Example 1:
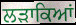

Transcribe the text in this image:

ਲੜਾਕਿਆਂ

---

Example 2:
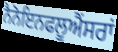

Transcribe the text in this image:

ਨੈਨੋਇਨਫਲੂਐਂਸਰਾਂ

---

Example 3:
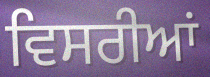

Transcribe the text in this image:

ਵਿਸਰੀਆਂ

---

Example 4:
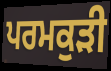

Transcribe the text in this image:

ਪਰਮਕੁੜੀ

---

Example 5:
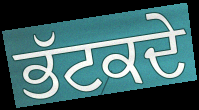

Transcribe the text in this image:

ਭੱਟਕਦੇ